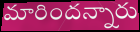
మారిందన్నారు